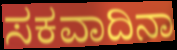
ಸಕವಾದಿನಾ